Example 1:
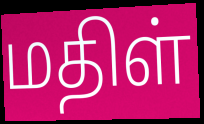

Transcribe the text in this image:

மதிள்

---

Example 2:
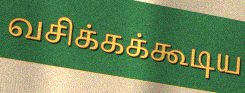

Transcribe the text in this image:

வசிக்கக்கூடிய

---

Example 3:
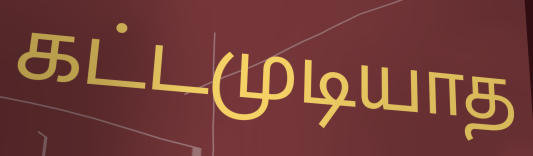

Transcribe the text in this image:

கட்டமுடியாத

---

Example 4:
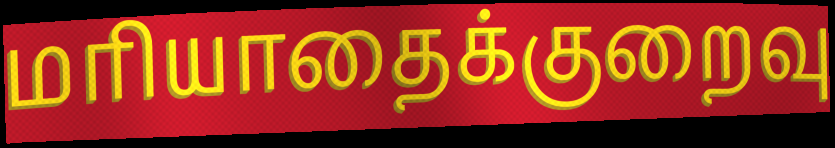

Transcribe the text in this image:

மரியாதைக்குறைவு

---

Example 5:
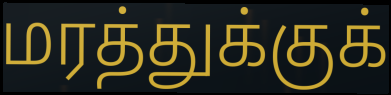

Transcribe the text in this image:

மரத்துக்குக்